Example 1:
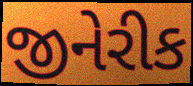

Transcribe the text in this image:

જીનેરીક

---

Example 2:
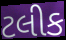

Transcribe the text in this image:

ટલીક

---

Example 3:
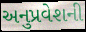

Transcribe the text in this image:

અનુપ્રવેશની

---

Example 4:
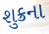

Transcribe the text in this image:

શુક્રના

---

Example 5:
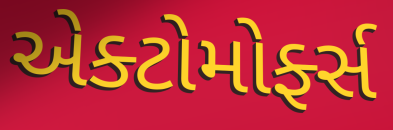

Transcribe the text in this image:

એક્ટોમોર્ફ્સ